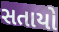
સતાયો